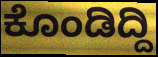
ಕೊಂಡಿದ್ದಿ